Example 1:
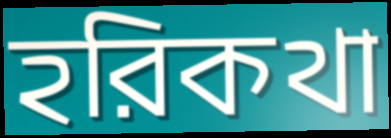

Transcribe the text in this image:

হরিকথা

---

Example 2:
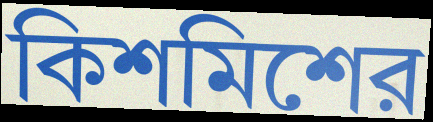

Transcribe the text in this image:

কিশমিশের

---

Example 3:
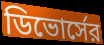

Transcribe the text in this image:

ডিভোর্সের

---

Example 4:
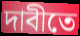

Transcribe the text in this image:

দাবীতে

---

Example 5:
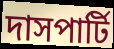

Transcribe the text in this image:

দাসপার্টি